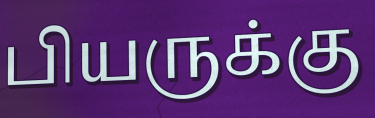
பியருக்கு